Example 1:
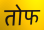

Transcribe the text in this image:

तोफ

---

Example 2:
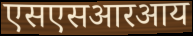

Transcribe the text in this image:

एसएसआरआय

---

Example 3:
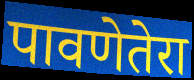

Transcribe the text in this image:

पावणेतेरा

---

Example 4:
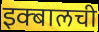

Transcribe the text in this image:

इक्बालची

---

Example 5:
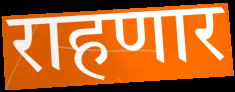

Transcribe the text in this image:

राहणार